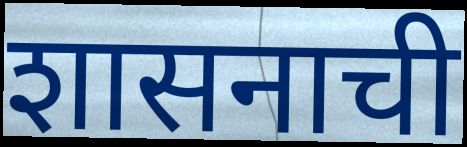
शासनाची